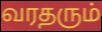
வரதரும்